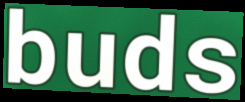
buds